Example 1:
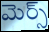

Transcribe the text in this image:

మెర్స్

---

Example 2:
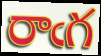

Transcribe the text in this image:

రాఁగ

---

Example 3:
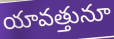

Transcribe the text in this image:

యావత్తునూ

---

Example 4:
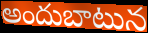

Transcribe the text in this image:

అందుబాటున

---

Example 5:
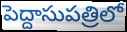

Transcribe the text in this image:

పెద్దాసుపత్రిలో